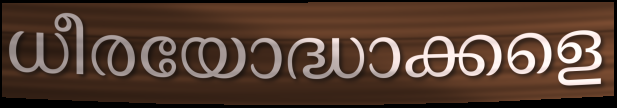
ധീരയോദ്ധാക്കളെ